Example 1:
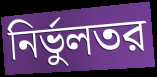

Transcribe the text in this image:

নির্ভুলতর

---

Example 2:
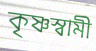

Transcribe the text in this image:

কৃষ্ণস্বামী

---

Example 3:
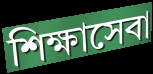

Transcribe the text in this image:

শিক্ষাসেবা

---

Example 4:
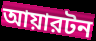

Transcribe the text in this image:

আয়ারটন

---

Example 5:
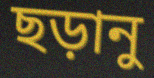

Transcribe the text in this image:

ছড়ানু